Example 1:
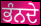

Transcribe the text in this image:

ਭੰਨਦੇ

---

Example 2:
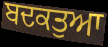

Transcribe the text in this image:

ਬਦਕਤੁਆ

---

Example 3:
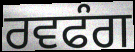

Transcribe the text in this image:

ਰਵਫੰਗ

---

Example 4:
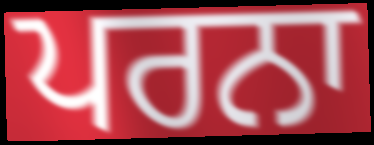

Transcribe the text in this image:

ਪਰਨਾ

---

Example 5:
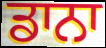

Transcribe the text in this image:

ਡਾਨਾ